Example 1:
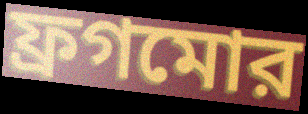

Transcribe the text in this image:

ফ্রগমোর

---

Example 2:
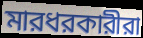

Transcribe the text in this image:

মারধরকারীরা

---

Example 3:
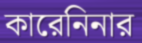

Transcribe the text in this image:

কারেনিনার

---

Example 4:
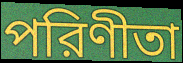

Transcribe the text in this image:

পরিণীতা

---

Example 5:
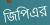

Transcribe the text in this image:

জিপিএর